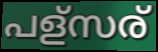
പള്സര്